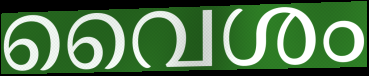
വൈശം